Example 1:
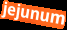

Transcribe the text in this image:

jejunum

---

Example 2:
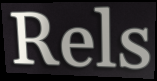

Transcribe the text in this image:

Rels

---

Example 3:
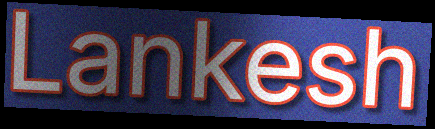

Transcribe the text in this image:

Lankesh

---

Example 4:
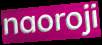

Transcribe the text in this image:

naoroji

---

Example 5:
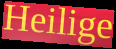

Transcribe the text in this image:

Heilige